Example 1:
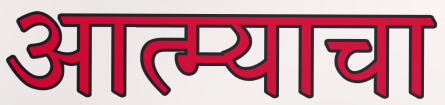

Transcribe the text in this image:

आत्म्याचा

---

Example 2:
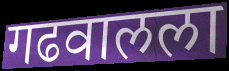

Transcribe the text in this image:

गढवालला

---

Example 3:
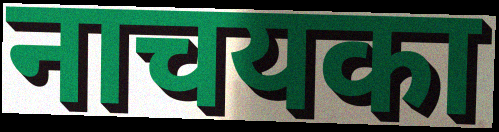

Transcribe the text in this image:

नाचयका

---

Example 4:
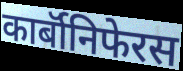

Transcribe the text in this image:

कार्बॉनिफेरस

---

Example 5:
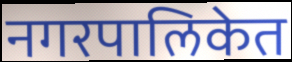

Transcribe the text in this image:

नगरपालिकेत